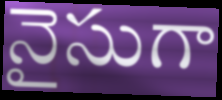
నైసుగా